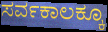
ಸರ್ವಕಾಲಕ್ಕೂ